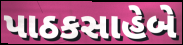
પાઠકસાહેબે